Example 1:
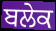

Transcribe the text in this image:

ਬਲੇਕ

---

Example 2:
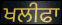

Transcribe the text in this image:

ਖਲੀਫਾ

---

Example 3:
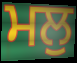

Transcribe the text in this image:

ਮਲੁ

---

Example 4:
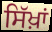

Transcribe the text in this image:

ਸਿੱਖ਼ਾਂ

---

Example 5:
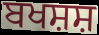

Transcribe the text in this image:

ਬਖਸ਼ਸ਼